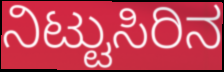
ನಿಟ್ಟುಸಿರಿನ